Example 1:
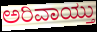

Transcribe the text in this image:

ಅರಿವಾಯ್ತು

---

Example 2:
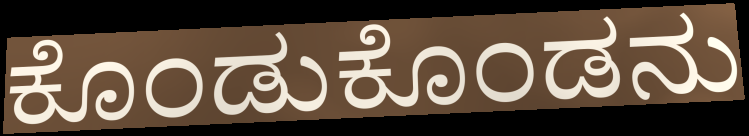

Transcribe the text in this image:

ಕೊಂಡುಕೊಂಡನು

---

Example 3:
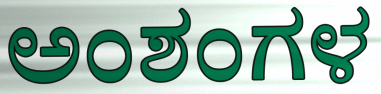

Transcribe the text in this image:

ಅಂಶಂಗಳ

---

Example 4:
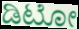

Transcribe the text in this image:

ಡಿಟೋ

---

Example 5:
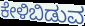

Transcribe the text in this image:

ಕೇಳಿಬಿಡುವ